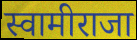
स्वामीराजा